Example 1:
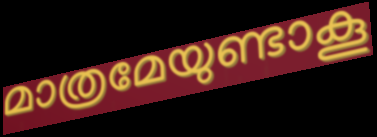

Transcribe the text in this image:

മാത്രമേയുണ്ടാകൂ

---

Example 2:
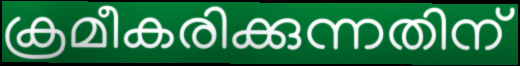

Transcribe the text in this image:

ക്രമീകരിക്കുന്നതിന്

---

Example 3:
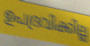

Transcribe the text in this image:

ഉപദ്രവിക്കില്ല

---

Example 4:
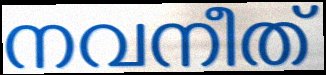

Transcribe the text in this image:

നവനീത്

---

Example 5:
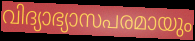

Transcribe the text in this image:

വിദ്യാഭ്യാസപരമായും